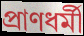
প্রাণধর্মী